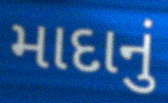
માદાનું